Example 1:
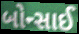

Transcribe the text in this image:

બોન્સાઈ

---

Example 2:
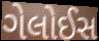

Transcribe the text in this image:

ગેલોઈસ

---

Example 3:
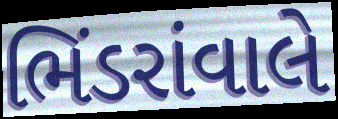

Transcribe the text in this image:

ભિંડરાંવાલે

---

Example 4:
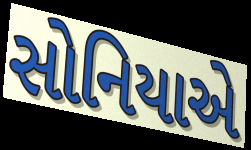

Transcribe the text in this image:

સોનિયાએ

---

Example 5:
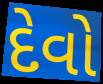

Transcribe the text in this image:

દેવો